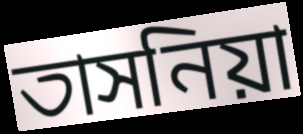
তাসনিয়া